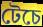
টেচে